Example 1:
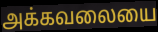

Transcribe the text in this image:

அக்கவலையை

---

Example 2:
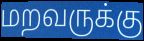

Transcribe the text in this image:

மறவருக்கு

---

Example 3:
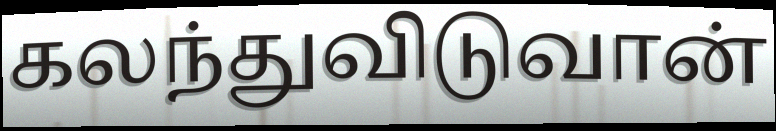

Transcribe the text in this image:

கலந்துவிடுவான்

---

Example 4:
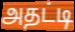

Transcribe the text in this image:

அதட்டி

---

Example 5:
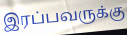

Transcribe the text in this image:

இரப்பவருக்கு